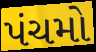
પંચમો